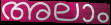
അലാം